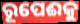
ରୂପେଈକୁ